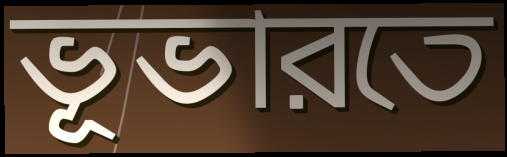
ভূভারতে